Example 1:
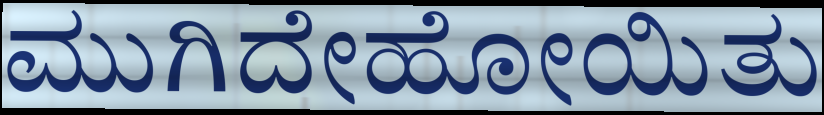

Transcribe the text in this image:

ಮುಗಿದೇಹೋಯಿತು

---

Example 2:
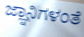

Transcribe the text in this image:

ಜ್ಞಾನಿಗಳಂತೆ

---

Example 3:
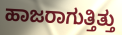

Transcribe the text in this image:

ಹಾಜರಾಗುತ್ತಿತ್ತು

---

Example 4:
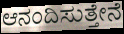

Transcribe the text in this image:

ಆನಂದಿಸುತ್ತೇನೆ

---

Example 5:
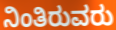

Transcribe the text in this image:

ನಿಂತಿರುವರು